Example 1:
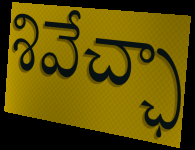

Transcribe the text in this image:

శివేచ్ఛా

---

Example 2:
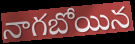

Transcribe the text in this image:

నాగబోయిన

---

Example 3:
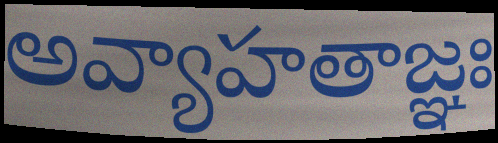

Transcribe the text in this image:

అవ్యాహతాజ్ఞః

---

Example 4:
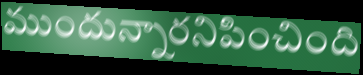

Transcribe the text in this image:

ముందున్నారనిపించింది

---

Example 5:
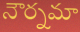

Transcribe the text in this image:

నౌర్నమా